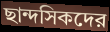
ছান্দসিকদের